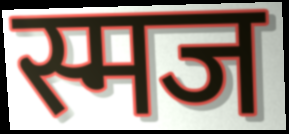
स्मज